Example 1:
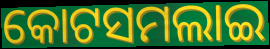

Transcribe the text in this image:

କୋଟସମଲାଇ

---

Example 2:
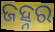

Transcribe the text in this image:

ଜହ୍ନର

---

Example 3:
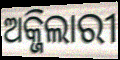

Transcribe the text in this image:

ଅକ୍ଜିଲାରୀ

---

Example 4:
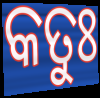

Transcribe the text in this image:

କତୁଃ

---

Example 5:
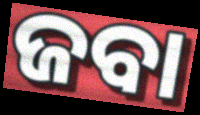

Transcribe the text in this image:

ଜବା